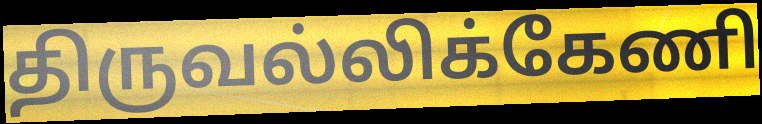
திருவல்லிக்கேணி